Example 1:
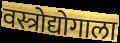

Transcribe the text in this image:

वस्त्रोद्योगाला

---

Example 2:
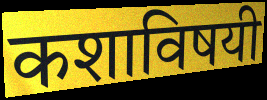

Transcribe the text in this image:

कशाविषयी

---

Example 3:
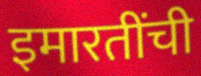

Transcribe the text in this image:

इमारतींची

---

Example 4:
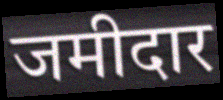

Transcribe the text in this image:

जमीदार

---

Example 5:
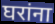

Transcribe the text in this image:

घरांना